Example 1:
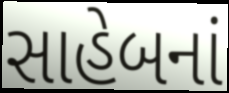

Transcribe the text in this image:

સાહેબનાં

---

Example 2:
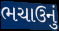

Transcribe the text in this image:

ભચાઉનું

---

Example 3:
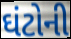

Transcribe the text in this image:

ઘંટોની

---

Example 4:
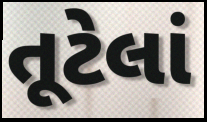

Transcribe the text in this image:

તૂટેલાં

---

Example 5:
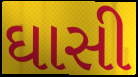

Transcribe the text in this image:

ઘાસી